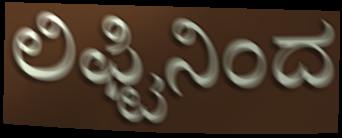
ಲಿಫ್ಟಿನಿಂದ